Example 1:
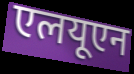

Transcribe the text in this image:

एलयूएन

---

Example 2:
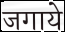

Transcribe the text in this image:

जगाये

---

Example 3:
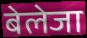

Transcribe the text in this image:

बेलेजा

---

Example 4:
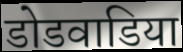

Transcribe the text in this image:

डोडवाडिया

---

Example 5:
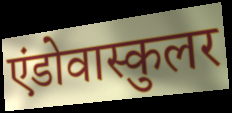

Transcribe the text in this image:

एंडोवास्कुलर